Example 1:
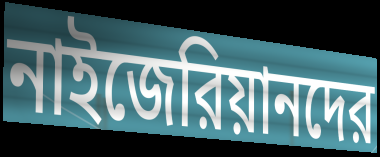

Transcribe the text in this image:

নাইজেরিয়ানদের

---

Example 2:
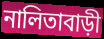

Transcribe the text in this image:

নালিতাবাড়ী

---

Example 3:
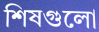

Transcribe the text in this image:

শিষগুলো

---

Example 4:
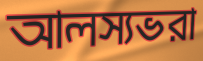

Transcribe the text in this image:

আলস্যভরা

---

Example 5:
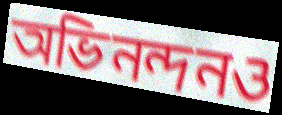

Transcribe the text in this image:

অভিনন্দনও